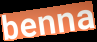
benna